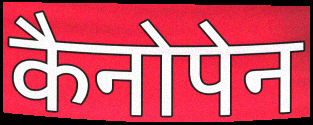
कैनोपेन